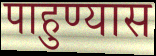
पाहुण्यास